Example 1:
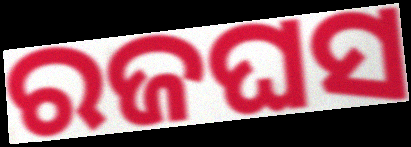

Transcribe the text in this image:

ରଜଘସ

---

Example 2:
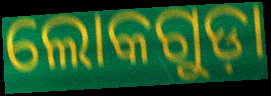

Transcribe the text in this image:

ଲୋକଗୁଡ଼ା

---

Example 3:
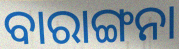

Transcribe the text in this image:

ବାରାଙ୍ଗନା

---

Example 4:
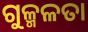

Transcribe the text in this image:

ଗୁଳ୍ମଳତା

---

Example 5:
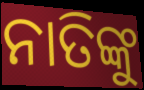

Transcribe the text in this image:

ନାତିଙ୍କୁ